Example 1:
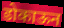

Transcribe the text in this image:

डोकाऊन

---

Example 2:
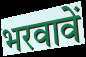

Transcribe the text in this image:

भरवावें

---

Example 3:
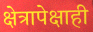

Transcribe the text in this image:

क्षेत्रापेक्षाही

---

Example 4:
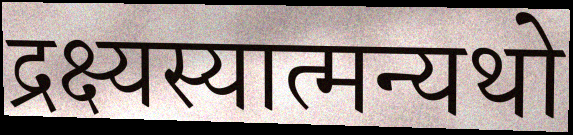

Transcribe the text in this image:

द्रक्ष्यस्यात्मन्यथो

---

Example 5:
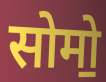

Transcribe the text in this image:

सोमो॒